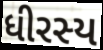
ધીરસ્ય